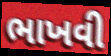
ભાખવી